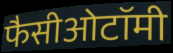
फैसीओटॉमी